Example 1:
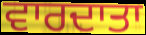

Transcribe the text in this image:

ਵਾਰਦਾਤਾ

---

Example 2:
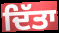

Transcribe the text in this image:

ਦਿੱਤਾ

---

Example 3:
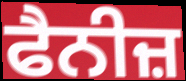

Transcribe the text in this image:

ਫੈਨੀਜ਼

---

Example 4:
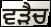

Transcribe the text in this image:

ਵੜੈਚ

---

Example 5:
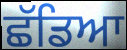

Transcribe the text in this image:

ਛੱਡਿਆ